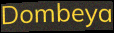
Dombeya